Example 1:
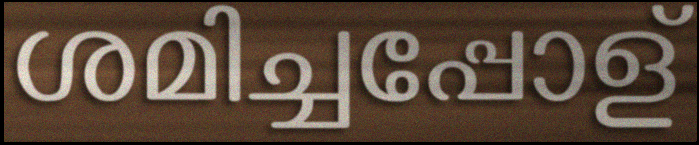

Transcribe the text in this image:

ശമിച്ചപ്പോള്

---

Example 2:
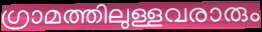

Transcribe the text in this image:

ഗ്രാമത്തിലുള്ളവരാരും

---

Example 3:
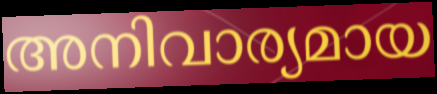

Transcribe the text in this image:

അനിവാര്യമായ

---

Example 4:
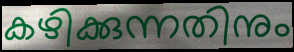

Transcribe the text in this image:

കഴിക്കുന്നതിനും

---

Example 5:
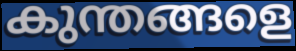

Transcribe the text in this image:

കുന്തങ്ങളെ